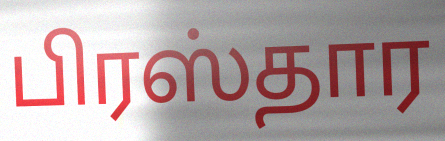
பிரஸ்தார